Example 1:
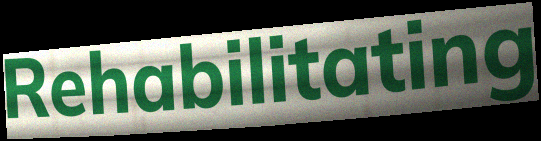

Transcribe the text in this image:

Rehabilitating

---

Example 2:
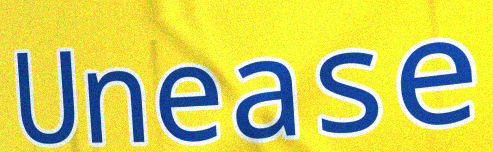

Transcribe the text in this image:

Unease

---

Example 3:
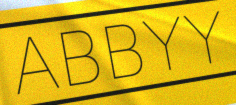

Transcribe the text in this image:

ABBYY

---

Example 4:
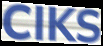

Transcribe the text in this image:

CIKS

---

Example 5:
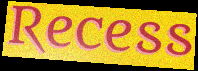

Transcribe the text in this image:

Recess